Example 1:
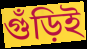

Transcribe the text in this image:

গুঁড়িই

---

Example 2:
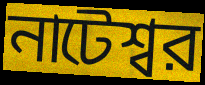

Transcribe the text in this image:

নাটেশ্বর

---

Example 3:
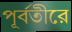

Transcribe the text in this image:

পূর্বতীরে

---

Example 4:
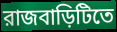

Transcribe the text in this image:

রাজবাড়িটিতে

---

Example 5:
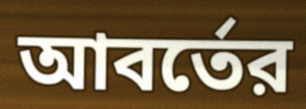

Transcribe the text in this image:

আবর্তের